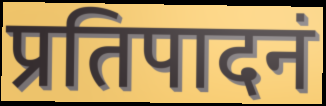
प्रतिपादनं